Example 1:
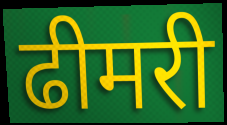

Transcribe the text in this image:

ढीमरी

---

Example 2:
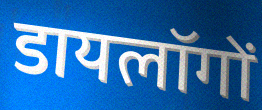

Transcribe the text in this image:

डायलॉगों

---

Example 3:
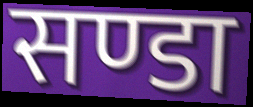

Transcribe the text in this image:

सण्डा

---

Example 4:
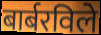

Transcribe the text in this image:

बार्बरविले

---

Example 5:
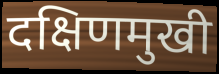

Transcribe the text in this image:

दक्षिणमुखी